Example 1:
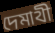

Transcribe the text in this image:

দেমাথী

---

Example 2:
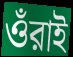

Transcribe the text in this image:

ওঁরাই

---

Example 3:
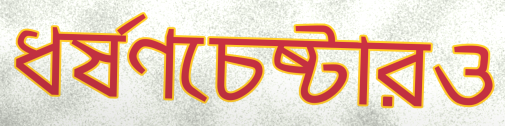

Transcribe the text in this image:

ধর্ষণচেষ্টারও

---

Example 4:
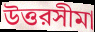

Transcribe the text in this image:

উত্তরসীমা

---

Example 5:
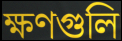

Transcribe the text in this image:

ক্ষণগুলি